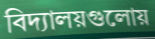
বিদ্যালয়গুলোয়